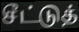
சீட்டுத்